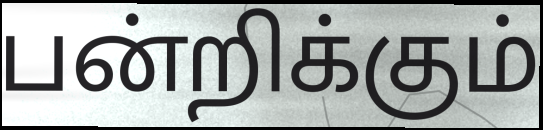
பன்றிக்கும்